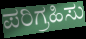
ಪರಿಗ್ರಹಿಸು